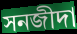
সনজীদা